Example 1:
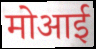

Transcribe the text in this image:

मोआई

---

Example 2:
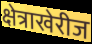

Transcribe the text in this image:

क्षेत्राखेरीज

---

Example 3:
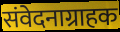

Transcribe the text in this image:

संवेदनाग्राहक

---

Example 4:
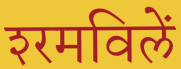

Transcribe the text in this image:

श्रमविलें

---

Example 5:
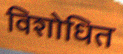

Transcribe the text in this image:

विशोधित